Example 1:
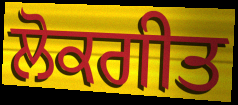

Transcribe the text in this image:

ਲੋਕਗੀਤ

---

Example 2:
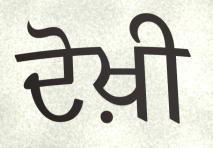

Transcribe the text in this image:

ਦੋਖ਼ੀ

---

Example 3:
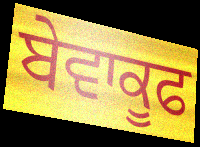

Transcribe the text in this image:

ਬੇਵਾਕੂਫ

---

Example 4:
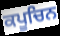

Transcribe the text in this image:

ਕਪੂਚਿਨ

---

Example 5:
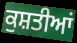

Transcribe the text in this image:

ਕੁਸ਼ਤੀਆਂ